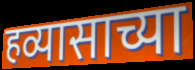
हव्यासाच्या